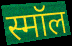
स्मॉल